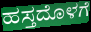
ಹಸ್ತದೊಳಗೆ